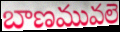
బాణమువలె